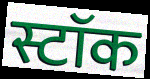
स्‍टॉक